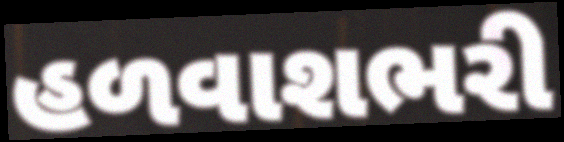
હળવાશભરી